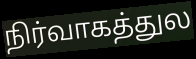
நிர்வாகத்துல